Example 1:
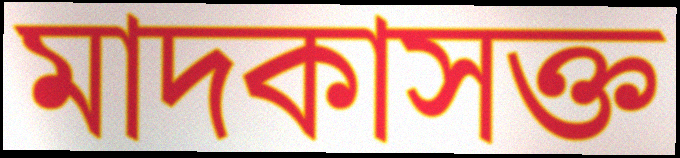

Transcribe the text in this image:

মাদকাসক্ত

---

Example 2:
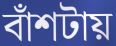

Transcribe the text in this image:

বাঁশটায়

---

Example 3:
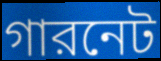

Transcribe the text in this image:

গারনেট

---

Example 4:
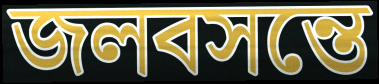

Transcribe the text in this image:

জলবসন্তে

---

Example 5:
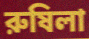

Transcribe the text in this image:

রুষিলা